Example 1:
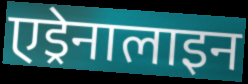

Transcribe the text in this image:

एड्रेनालाइन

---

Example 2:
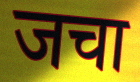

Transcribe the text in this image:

जचा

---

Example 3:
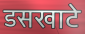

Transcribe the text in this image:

डसखाटे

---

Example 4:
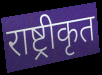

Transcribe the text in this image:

राष्ट्रीकृत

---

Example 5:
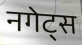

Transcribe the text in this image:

नगेट्स